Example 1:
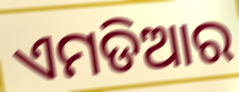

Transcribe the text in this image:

ଏମଡିଆର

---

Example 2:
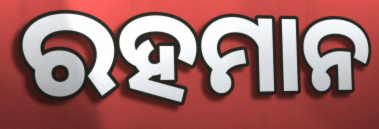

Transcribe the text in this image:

ରହମାନ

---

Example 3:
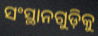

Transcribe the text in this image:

ସଂସ୍ଥାନଗୁଡ଼ିକୁ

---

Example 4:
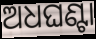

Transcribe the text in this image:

ଅଧଘଣ୍ଟା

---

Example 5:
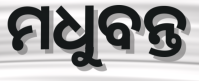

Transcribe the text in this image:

ମଧୁବନ୍ତ